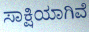
ಸಾಕ್ಷಿಯಾಗಿವೆ